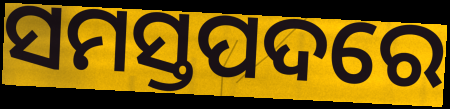
ସମସ୍ତପଦରେ